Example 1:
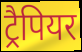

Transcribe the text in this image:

ट्रैपियर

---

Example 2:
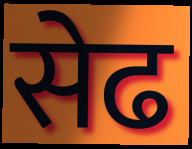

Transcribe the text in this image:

सेढ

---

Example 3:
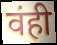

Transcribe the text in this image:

वंही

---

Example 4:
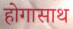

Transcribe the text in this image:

होगासाथ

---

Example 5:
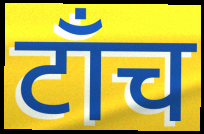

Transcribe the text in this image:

टाँच